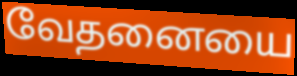
வேதனையை